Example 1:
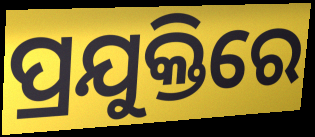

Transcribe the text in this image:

ପ୍ରଯୁକ୍ତିରେ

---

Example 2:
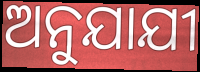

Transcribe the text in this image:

ଅନୁଯାଯୀ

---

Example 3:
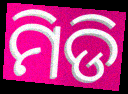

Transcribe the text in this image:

ମିଡି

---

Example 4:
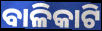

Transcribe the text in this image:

ବାଳିକାଟି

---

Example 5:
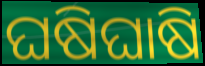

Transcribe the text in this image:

ଘଷିଘାଷି